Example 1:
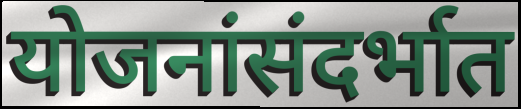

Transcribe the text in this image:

योजनांसंदर्भात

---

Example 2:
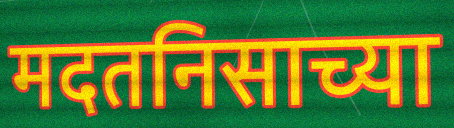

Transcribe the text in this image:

मदतनिसाच्या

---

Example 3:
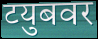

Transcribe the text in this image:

टयुबवर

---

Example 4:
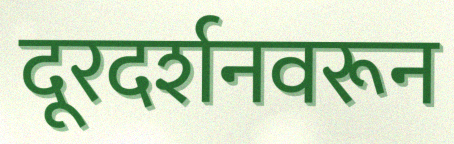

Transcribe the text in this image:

दूरदर्शनवरून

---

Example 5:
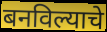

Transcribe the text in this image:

बनविल्याचे